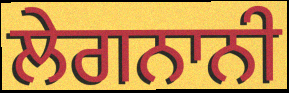
ਲੇਗਨਾਨੀ